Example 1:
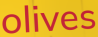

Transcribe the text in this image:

olives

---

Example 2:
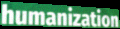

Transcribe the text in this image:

humanization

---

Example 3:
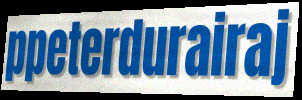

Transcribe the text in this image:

ppeterdurairaj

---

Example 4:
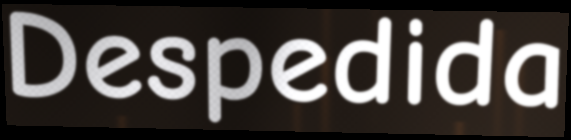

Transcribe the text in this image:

Despedida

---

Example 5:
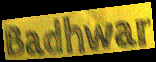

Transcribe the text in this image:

Badhwar